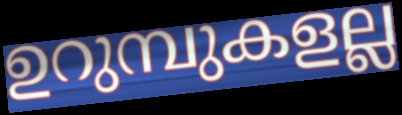
ഉറുമ്പുകളല്ല